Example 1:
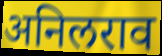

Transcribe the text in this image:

अनिलराव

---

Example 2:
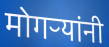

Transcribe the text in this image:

मोगऱ्यांनी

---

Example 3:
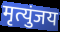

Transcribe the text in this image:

मृत्युंजय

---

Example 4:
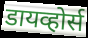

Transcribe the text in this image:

डायव्होर्स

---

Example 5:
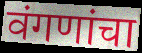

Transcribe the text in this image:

वंगणांचा